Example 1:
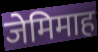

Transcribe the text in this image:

जेमिमाह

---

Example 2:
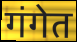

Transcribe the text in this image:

गंगेत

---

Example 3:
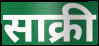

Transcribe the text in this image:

साक्री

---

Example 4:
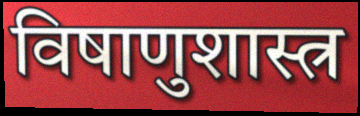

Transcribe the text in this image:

विषाणुशास्त्र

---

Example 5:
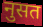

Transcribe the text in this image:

नुसत